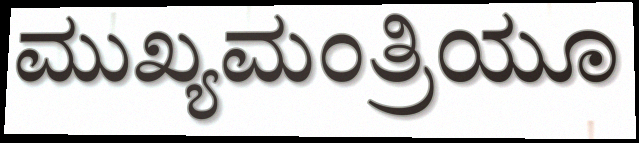
ಮುಖ್ಯಮಂತ್ರಿಯೂ